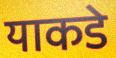
याकडे